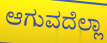
ಆಗುವದೆಲ್ಲಾ